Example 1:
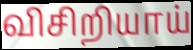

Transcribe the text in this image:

விசிறியாய்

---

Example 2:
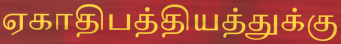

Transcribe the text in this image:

ஏகாதிபத்தியத்துக்கு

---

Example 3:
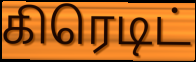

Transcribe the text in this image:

கிரெடிட்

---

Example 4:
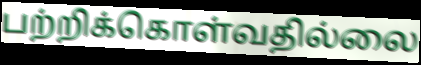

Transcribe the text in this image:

பற்றிக்கொள்வதில்லை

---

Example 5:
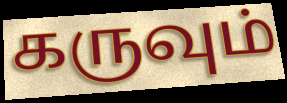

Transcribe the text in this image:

கருவும்